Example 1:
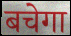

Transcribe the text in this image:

बचेगा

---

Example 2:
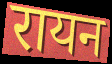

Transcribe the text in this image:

रायन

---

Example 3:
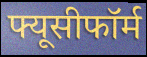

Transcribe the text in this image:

फ्यूसीफॉर्म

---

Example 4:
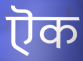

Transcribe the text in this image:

ऎक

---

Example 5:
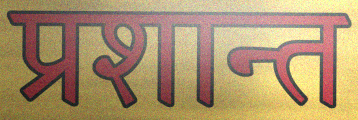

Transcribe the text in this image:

प्रशान्त